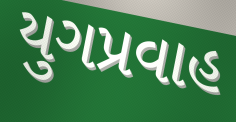
યુગપ્રવાહ